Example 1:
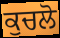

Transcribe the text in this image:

ਕੁਚਲੋ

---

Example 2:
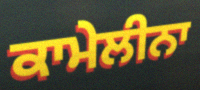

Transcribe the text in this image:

ਕਾਮੇਲੀਨਾ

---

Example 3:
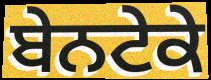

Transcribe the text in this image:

ਬੇਨਟੇਕੇ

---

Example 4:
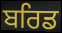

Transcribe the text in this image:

ਬਰਿਡ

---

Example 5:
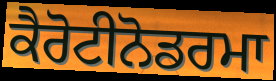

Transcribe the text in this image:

ਕੈਰੋਟੀਨੋਡਰਮਾ